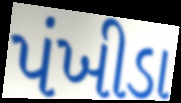
પંખીડા